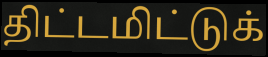
திட்டமிட்டுக்